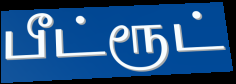
பீட்ரூட்